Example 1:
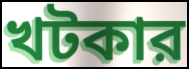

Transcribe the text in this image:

খটকার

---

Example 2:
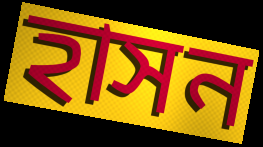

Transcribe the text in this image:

হাসন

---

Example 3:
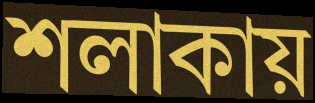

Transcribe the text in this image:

শলাকায়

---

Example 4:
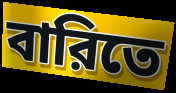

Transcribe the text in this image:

বারিতে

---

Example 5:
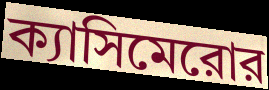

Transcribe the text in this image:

ক্যাসিমেরোর